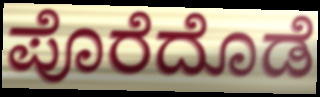
ಪೊರೆದೊಡೆ